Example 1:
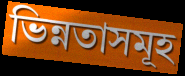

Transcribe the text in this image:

ভিন্নতাসমূহ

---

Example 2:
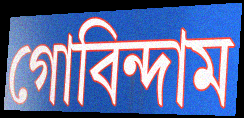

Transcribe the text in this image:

গোবিন্দাম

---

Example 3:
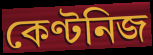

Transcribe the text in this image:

কেণ্টনিজ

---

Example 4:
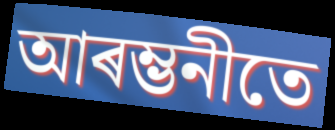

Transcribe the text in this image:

আৰম্ভনীতে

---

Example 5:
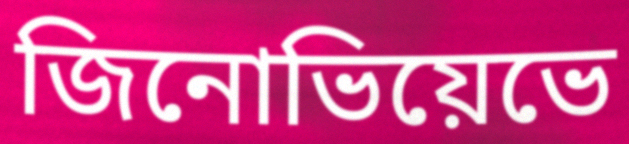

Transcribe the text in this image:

জিনোভিয়েভে